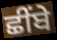
ਛੀਂਬੇ